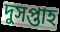
দুসপ্তাহ